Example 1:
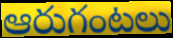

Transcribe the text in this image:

ఆరుగంటలు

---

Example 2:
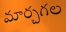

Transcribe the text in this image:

మార్చగల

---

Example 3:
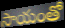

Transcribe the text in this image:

సాయంతో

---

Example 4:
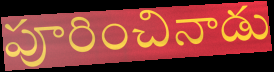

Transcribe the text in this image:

పూరించినాడు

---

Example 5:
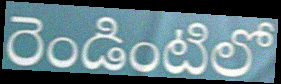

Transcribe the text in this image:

రెండింటిలో